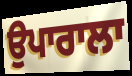
ਉਪਾਰਾਲਾ